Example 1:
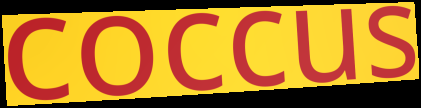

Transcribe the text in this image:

coccus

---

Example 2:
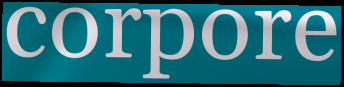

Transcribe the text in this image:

corpore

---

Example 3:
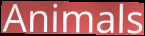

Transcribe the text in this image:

Animals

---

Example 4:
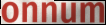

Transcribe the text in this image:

onnum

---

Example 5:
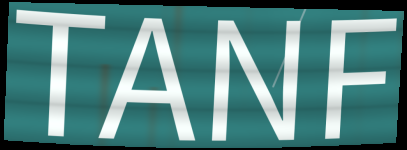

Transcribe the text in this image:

TANF